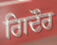
ਗਿਦੌਰ